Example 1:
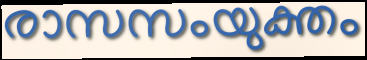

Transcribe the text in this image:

രാസസംയുക്തം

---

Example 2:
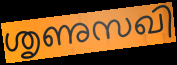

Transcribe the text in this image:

ശൃണുസഖി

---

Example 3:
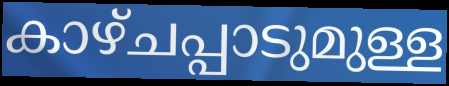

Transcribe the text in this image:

കാഴ്ചപ്പാടുമുള്ള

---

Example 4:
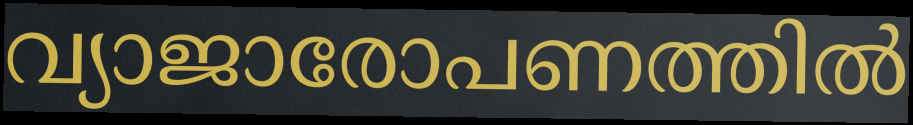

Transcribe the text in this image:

വ്യാജാരോപണത്തിൽ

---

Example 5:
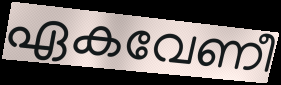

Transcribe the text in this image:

ഏകവേണീ